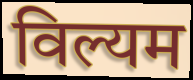
विल्यम